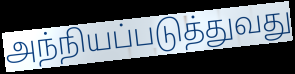
அந்நியப்படுத்துவது